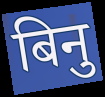
बिनु